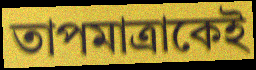
তাপমাত্রাকেই